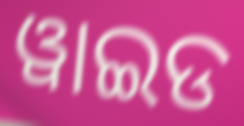
ୱାଇଡ